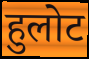
हुलोट